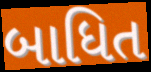
બાધિત